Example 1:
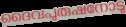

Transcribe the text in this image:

ദൈവപുരുഷനോടു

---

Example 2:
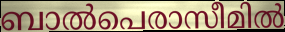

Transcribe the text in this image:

ബാൽപെരാസീമിൽ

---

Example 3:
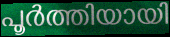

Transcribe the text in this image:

പൂർത്തിയായി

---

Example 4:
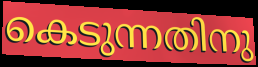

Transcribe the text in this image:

കെടുന്നതിനു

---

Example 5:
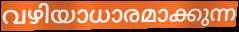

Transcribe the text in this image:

വഴിയാധാരമാക്കുന്ന